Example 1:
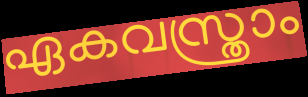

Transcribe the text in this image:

ഏകവസ്ത്രാം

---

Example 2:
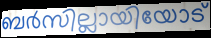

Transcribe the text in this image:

ബർസില്ലായിയോട്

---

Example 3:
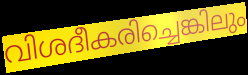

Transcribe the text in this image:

വിശദീകരിച്ചെങ്കിലും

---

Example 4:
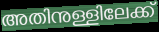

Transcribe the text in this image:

അതിനുള്ളിലേക്ക്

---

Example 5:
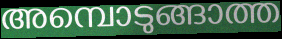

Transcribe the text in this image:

അമ്പൊടുങ്ങാത്ത